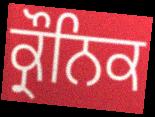
ਕ੍ਰੌਨਿਕ